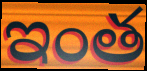
ఇంత